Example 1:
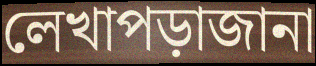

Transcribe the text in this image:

লেখাপড়াজানা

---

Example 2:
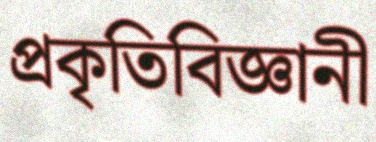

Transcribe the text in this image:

প্রকৃতিবিজ্ঞানী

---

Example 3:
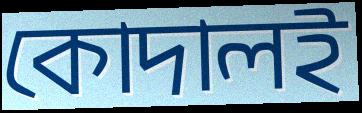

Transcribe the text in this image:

কোদালই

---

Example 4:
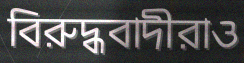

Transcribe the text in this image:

বিরুদ্ধবাদীরাও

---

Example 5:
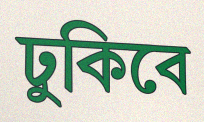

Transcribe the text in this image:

ঢুকিবে